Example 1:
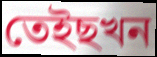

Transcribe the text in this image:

তেইছখন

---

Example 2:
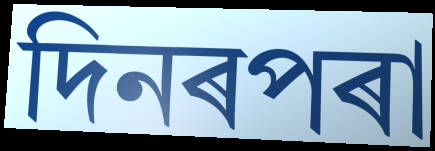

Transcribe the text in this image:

দিনৰপৰা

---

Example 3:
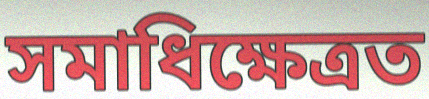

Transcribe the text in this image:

সমাধিক্ষেত্ৰত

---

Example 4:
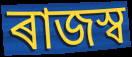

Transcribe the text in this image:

ৰাজস্ব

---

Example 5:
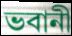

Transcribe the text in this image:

ভবানী